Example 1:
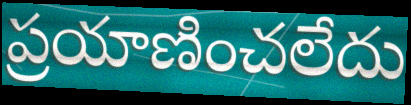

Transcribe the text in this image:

ప్రయాణించలేదు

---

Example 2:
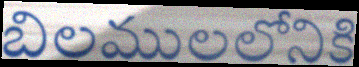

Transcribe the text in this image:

బిలములలోనికి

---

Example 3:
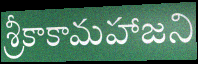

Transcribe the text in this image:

శ్రీకాకామహాజని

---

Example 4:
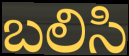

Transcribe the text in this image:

బలిసి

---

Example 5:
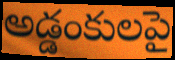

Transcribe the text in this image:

అడ్డంకులపై